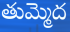
తుమ్మెద